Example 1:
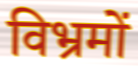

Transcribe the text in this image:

विभ्रमों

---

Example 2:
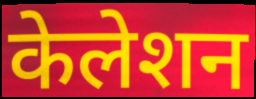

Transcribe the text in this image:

केलेशन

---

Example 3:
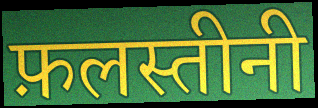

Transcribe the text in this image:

फ़लस्तीनी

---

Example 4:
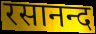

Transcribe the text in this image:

रसानन्द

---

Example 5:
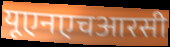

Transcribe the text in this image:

यूएनएचआरसी